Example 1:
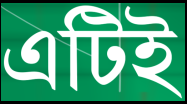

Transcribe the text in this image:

এটিই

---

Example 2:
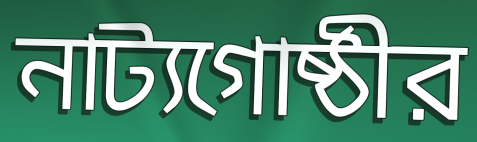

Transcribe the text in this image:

নাট্যগোষ্ঠীর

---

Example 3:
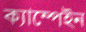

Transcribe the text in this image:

ক্যাম্পেইন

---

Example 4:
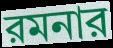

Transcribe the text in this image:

রমনার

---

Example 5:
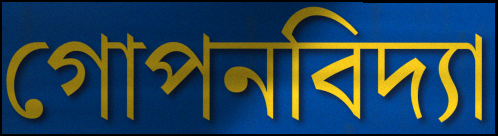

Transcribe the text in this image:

গোপনবিদ্যা